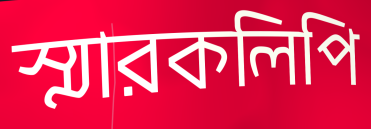
স্মারকলিপি